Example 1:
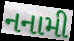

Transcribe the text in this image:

નનામી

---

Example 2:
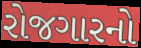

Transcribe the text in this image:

રોજગારનો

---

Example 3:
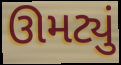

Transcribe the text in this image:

ઊમટ્યું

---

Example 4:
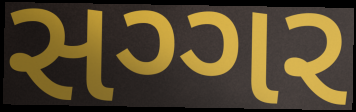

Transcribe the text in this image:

સગ્ગર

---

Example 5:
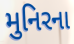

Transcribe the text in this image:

મુનિરના